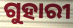
ଗୁହାରୀ